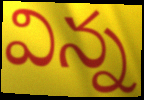
విన్న